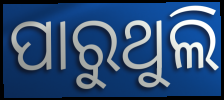
ପାରୁଥୁଲି